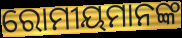
ରୋମୀୟମାନଙ୍କ